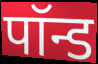
पॉन्ड